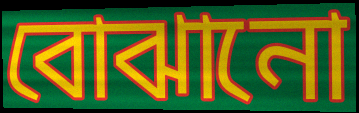
বোঝানো